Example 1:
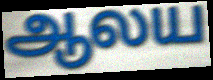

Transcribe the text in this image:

ஆலய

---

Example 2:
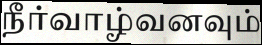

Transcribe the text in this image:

நீர்வாழ்வனவும்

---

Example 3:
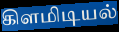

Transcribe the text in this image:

கிளமிடியல்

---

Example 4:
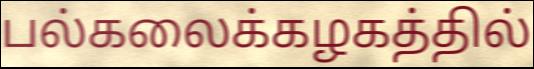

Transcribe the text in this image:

பல்கலைக்கழகத்தில்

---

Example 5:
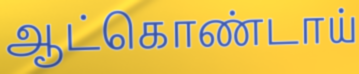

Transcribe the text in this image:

ஆட்கொண்டாய்